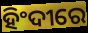
ହିଂଦୀରେ